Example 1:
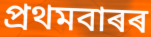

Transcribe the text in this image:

প্ৰথমবাৰৰ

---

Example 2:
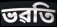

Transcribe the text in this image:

ভৱতি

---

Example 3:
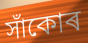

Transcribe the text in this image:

সাঁকোৰ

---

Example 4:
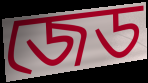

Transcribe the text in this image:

জেড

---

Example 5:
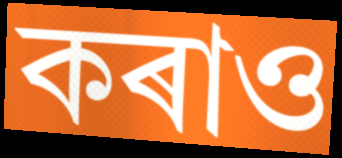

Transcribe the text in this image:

কৰাও